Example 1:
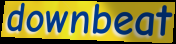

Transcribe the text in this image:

downbeat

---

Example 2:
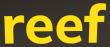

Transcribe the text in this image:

reef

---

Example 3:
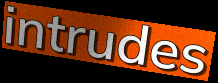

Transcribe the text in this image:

intrudes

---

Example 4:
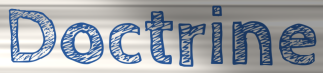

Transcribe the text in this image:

Doctrine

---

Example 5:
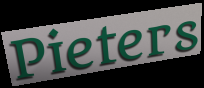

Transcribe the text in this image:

Pieters